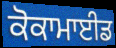
ਕੋਕਾਮਾਈਡ